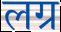
लग्र